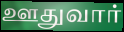
ஊதுவார்